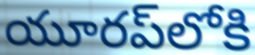
యూరప్‌లోకి